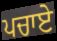
ਪਚਾਏ